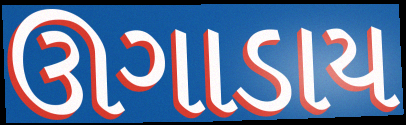
ઊગાડાય